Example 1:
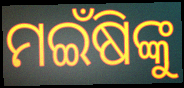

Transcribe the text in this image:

ମଇଁଷିଙ୍କୁ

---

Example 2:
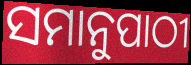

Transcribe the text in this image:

ସମାନୁପାଠୀ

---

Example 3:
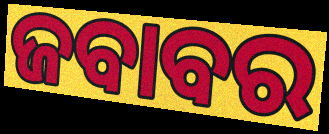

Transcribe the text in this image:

ଜବାବର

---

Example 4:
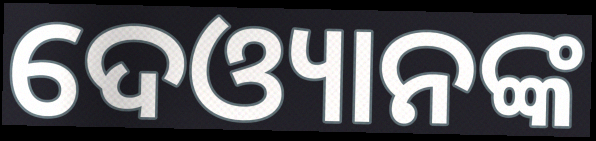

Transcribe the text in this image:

ଦେଓ୍ୟାନଙ୍କ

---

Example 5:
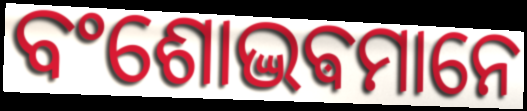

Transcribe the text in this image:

ବଂଶୋଦ୍ଭଵମାନେ